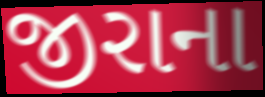
જીરાના